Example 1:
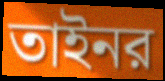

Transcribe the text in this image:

তাইনর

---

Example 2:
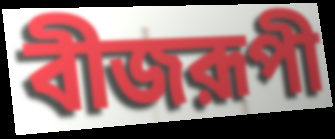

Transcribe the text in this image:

বীজরূপী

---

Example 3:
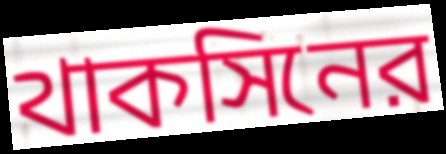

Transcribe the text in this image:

থাকসিনের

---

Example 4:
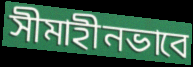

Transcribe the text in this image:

সীমাহীনভাবে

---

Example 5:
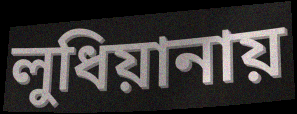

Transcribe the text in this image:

লুধিয়ানায়